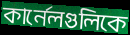
কার্নেলগুলিকে